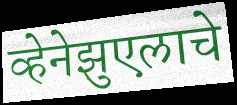
व्हेनेझुएलाचे